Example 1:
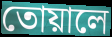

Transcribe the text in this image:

তোয়ালে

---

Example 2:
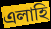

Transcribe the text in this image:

এলাহি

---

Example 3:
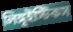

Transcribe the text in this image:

লিঙ্গুইস্টিকস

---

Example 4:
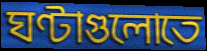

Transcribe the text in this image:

ঘণ্টাগুলোতে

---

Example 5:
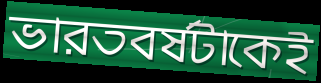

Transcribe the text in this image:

ভারতবর্ষটাকেই